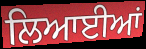
ਲਿਆਈਆਂ